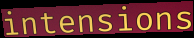
intensions